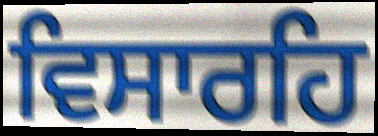
ਵਿਸਾਰਹਿ